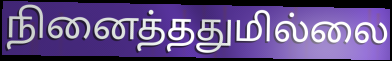
நினைத்ததுமில்லை